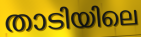
താടിയിലെ